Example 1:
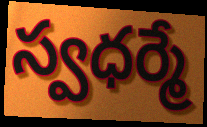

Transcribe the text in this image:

స్వధర్మే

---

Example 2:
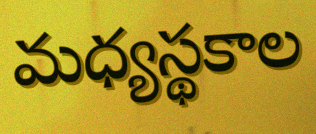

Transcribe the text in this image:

మధ్యస్థకాల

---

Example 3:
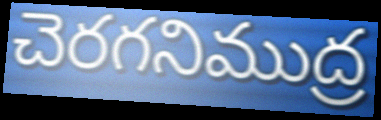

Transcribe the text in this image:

చెరగనిముద్ర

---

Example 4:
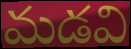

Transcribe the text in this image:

మడవి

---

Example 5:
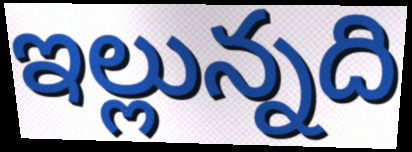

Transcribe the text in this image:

ఇల్లున్నది